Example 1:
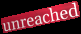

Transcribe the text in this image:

unreached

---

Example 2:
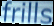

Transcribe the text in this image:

frills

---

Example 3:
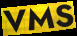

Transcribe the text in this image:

VMS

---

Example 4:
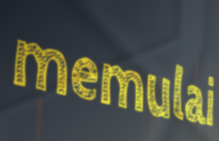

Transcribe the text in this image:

memulai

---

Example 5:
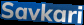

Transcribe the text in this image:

Savkari